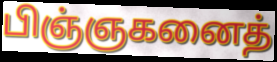
பிஞ்ஞகனைத்